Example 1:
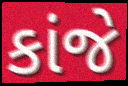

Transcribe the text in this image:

કાંજે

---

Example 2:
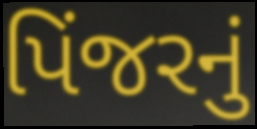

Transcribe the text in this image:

પિંજરનું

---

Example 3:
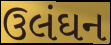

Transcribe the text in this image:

ઉલંઘન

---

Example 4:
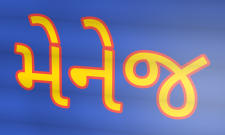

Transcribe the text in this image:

મેનેજ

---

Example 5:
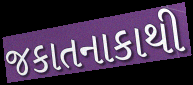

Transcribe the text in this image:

જકાતનાકાથી